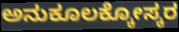
ಅನುಕೂಲಕ್ಕೋಸ್ಕರ